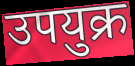
उपयुक्र